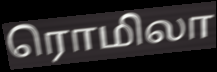
ரொமிலா